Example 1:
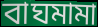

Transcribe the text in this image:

বাঘমামা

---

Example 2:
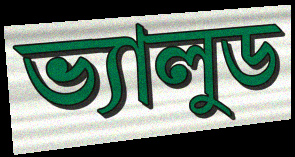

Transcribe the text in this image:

ভ্যালুড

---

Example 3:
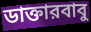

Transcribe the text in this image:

ডাক্তারবাবু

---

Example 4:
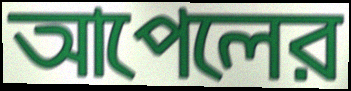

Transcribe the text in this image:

আপেলের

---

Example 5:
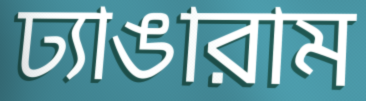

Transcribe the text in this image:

ঢ্যাঙারাম